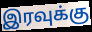
இரவுக்கு